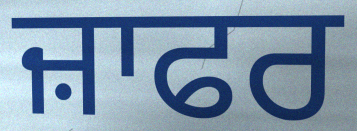
ਜ਼ਾਫਰ